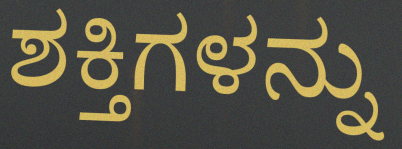
ಶಕ್ತಿಗಳನ್ನು